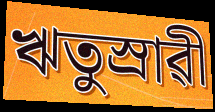
ঋতুস্ৰাৱী